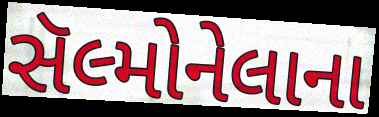
સૅલ્મોનેલાના